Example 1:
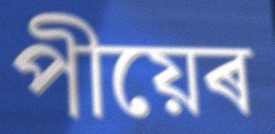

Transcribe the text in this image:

পীয়েৰ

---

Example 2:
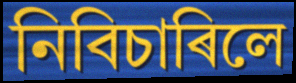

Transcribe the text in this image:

নিবিচাৰিলে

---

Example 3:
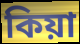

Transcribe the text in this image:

কিয়া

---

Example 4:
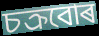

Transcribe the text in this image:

চক্ৰবোৰ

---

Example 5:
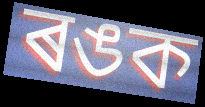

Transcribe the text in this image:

ৰঙক